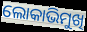
ଲୋକାଭିମୁଖି